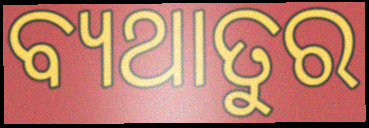
ବ୍ୟଥାତୁର